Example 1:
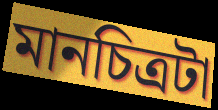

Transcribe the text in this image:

মানচিত্রটা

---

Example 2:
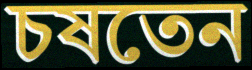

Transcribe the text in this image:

চষতেন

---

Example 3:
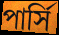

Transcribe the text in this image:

পার্সি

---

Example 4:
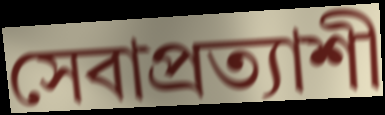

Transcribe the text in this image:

সেবাপ্রত্যাশী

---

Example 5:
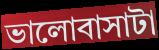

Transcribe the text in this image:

ভালোবাসাটা